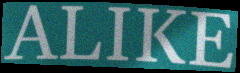
ALIKE